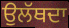
ਉਲੱਥਦਾ